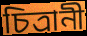
চিত্রানী